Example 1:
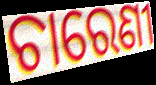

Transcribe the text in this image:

ଚାରେଣୀ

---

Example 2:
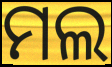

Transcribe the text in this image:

ମଲ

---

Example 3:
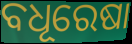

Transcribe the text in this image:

ବଧୂରେଷା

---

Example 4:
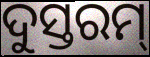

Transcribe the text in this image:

ଦୁସ୍ତରମ୍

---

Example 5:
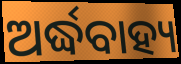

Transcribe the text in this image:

ଅର୍ଦ୍ଧବାହ୍ୟ